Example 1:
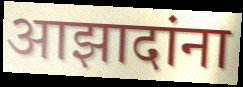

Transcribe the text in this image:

आझादांना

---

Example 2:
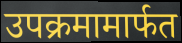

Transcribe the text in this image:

उपक्रमामार्फत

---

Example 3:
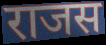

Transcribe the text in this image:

राजस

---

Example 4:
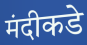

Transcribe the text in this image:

मंदीकडे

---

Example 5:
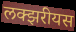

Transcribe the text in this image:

लक्झरीयस